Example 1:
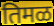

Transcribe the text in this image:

तिमळ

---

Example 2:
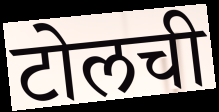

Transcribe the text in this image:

टोलची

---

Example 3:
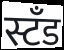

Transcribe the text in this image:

स्टॅंड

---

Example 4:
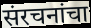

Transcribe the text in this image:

संरचनांचा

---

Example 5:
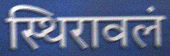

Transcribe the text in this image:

स्थिरावलं